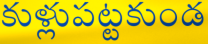
కుళ్లుపట్టకుండ